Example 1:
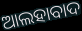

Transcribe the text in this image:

ଆଲହାବାଦ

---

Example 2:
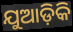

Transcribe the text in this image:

ଯୁଆଡ଼ିକି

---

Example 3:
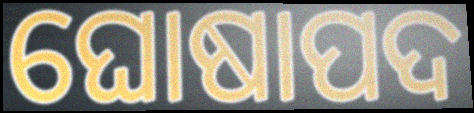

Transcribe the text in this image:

ଘୋଷାପଦ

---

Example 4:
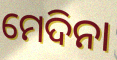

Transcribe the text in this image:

ମେଦିନା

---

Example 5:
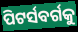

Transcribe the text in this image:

ପିଟର୍ସବର୍ଗକୁ